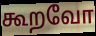
கூறவோ